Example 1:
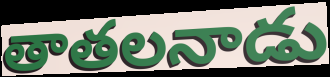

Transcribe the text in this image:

తాతలనాడు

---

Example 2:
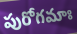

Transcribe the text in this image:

పురోగమాః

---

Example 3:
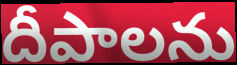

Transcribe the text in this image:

దీపాలను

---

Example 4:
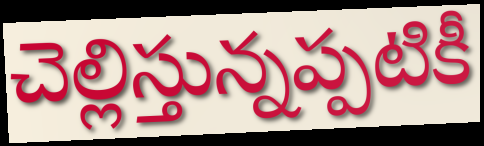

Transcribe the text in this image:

చెల్లిస్తున్నప్పటికీ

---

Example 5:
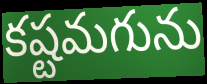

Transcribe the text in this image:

కష్టమగును